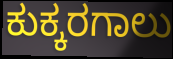
ಕುಕ್ಕರಗಾಲು